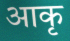
आकृ